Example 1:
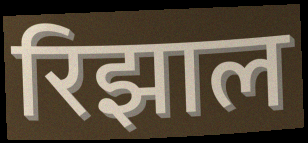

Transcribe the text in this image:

रिझाल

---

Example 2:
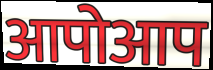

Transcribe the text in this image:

आपोआप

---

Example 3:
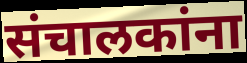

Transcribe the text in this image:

संचालकांना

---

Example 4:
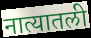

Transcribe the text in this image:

नात्यातली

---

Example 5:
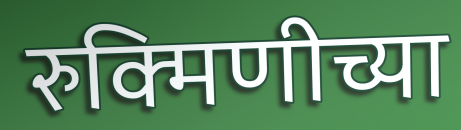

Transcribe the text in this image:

रुक्मिणीच्या